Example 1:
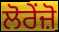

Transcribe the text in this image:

ਲੋਰੇਂਜ਼ੋ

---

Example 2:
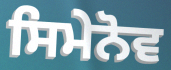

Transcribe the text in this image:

ਸਿਮੇਨੋਵ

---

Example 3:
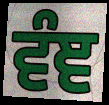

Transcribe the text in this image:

ਵੰਞ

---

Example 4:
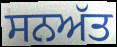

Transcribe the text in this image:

ਸਨਅੱਤ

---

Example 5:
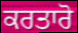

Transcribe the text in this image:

ਕਰਤਾਰੋ